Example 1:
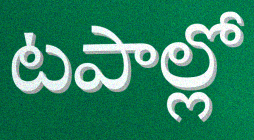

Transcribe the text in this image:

టపాల్లో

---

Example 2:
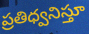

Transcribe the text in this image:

ప్రతిధ్వనిస్తూ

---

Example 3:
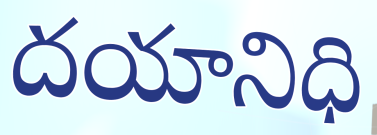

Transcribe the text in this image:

దయానిధి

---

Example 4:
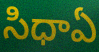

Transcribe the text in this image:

సిధాఏ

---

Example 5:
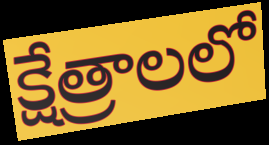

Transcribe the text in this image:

క్షేత్రాలలో